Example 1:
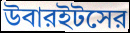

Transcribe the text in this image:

উবারইটসের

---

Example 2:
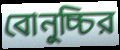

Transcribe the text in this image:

বোনুচ্চির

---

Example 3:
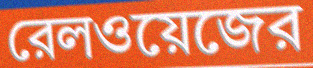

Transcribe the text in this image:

রেলওয়েজের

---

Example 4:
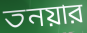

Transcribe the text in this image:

তনয়ার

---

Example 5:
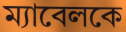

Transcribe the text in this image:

ম্যাবেলকে